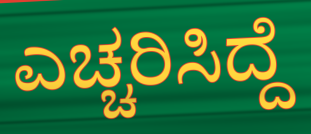
ಎಚ್ಚರಿಸಿದ್ದೆ